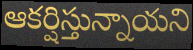
ఆకర్షిస్తున్నాయని